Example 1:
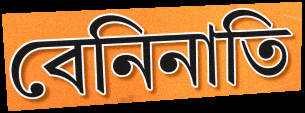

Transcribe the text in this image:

বেনিনাতি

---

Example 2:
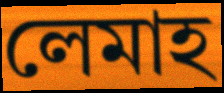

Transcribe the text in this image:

লেমাহ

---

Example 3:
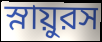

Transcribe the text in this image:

স্নায়ুরস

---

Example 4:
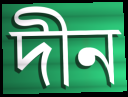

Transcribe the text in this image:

দীন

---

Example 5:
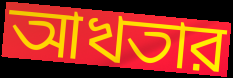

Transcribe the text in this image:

আখতার